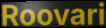
Roovari